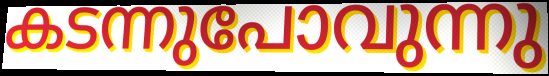
കടന്നുപോവുന്നു